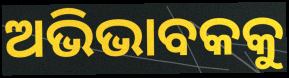
ଅଭିଭାବକକୁ